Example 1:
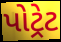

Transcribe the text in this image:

પોટ્રેટ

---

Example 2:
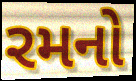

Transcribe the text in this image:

રમનો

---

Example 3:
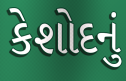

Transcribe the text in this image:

કેશોદનું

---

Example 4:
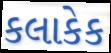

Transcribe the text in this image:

કલાકેક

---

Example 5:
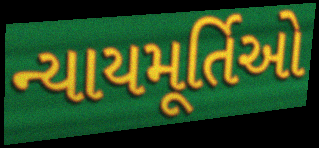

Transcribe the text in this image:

ન્યાયમૂર્તિઓ